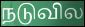
நடுவில